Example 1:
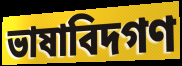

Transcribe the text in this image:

ভাষাবিদগণ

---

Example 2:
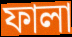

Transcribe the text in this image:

ফালা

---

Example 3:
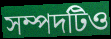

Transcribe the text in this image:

সম্পদটিও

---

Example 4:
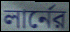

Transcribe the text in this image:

লার্নের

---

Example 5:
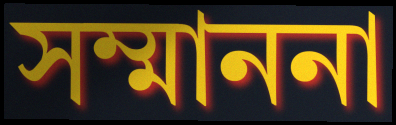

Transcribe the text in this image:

সম্মাননা